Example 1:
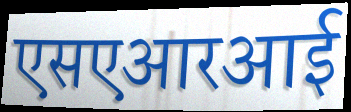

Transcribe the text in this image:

एसएआरआई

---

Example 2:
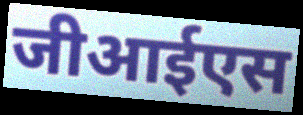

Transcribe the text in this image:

जीआईएस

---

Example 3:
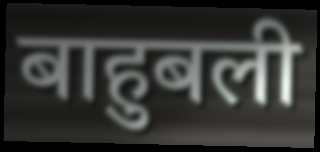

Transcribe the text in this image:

बाहुबली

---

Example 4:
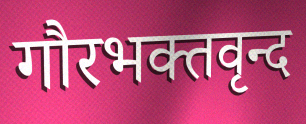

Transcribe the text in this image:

गौरभक्तवृन्द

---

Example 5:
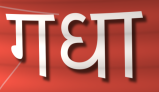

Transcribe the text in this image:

गधा